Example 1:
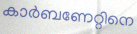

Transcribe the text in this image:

കാർബണേറ്റിനെ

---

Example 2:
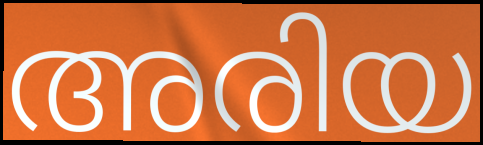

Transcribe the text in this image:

അരിയ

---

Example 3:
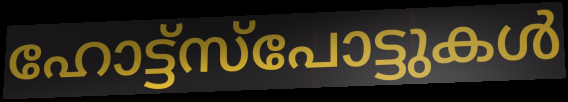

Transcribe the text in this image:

ഹോട്ട്സ്പോട്ടുകൾ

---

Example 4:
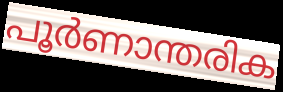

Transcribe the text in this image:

പൂർണാന്തരിക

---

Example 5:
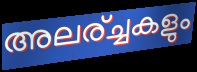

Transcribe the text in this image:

അലര്ച്ചകളും